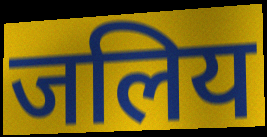
जलिय